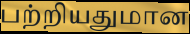
பற்றியதுமான